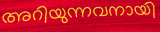
അറിയുന്നവനായി